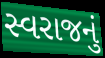
સ્વરાજનું